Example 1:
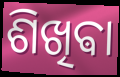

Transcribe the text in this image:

ଶିଖିଵା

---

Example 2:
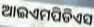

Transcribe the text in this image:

ଆଇଏମପିଡିଏସ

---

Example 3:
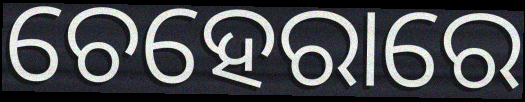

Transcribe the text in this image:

ଚେହେରାରେ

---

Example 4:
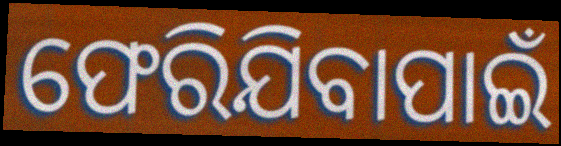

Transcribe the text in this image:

ଫେରିଯିବାପାଇଁ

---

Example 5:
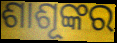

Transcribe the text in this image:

ଶାଶୂଙ୍କର